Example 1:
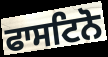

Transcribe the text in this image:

ਫਾਸਟਿਨੋ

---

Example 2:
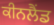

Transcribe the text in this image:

ਕੀਨਲੈਂਡ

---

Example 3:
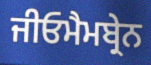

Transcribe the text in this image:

ਜੀਓਮੈਮਬ੍ਰੇਨ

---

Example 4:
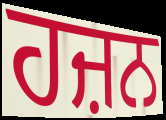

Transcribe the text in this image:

ਹਜ਼ਨ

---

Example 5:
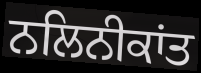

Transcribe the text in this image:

ਨਲਿਨੀਕਾਂਤ